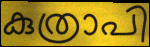
കുത്രാപി